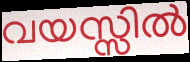
വയസ്സിൽ